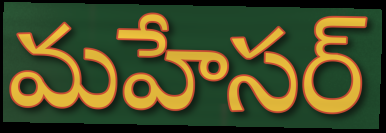
మహేసర్